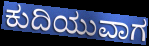
ಕುದಿಯುವಾಗ